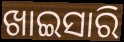
ଖାଇସାରି